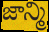
జాన్మి